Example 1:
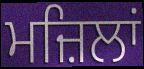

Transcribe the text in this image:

ਮਜ਼ਿਲਾਂ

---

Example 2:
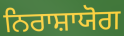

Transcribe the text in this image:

ਨਿਰਾਸ਼ਾਯੋਗ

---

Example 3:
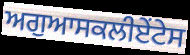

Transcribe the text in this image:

ਅਗੁਆਸਕਲੀਏਂਟੇਸ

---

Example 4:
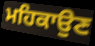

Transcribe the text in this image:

ਮਹਿਕਾਉਣ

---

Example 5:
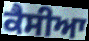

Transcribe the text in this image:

ਕੈਸੀਆ